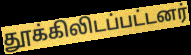
தூக்கிலிடப்பட்டனர்